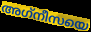
അഗ്‌നീസയെ